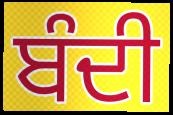
ਬੰਦੀ